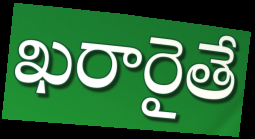
ఖరారైతే